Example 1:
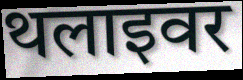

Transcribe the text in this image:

थलाइवर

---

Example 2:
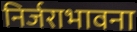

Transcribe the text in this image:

निर्जराभावना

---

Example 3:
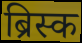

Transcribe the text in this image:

ब्रिस्क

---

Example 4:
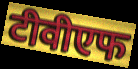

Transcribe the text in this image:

टीवीएफ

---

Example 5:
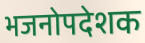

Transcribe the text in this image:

भजनोपदेशक